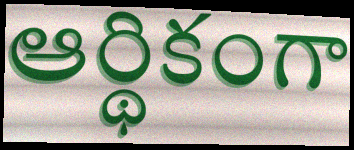
ఆర్థికంగా